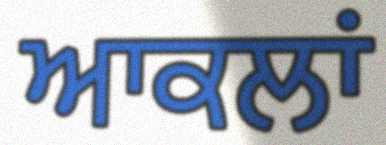
ਆਕਲਾਂ